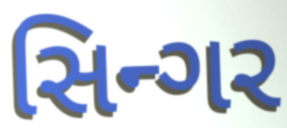
સિન્ગર